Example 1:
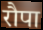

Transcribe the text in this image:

रौपा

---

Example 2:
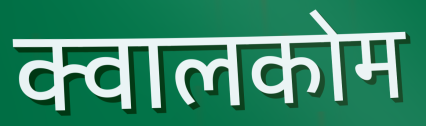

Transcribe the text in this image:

क्वालकोम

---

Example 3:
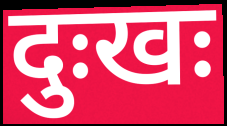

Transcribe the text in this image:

दुःखः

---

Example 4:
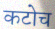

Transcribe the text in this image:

कटोच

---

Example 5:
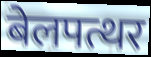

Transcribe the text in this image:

बेलपत्थर